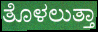
ತೊಳಲುತ್ತಾ